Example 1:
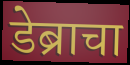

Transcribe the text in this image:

डेब्राचा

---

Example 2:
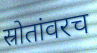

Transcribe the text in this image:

स्रोतांवरच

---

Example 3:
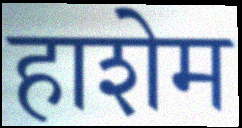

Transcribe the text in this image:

हाशेम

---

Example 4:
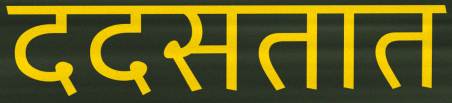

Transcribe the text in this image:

ददसतात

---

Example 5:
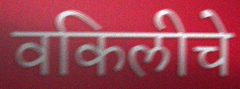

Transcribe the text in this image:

वकिलीचे